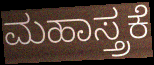
ಮಹಾಸ್ತ್ರಕೆ